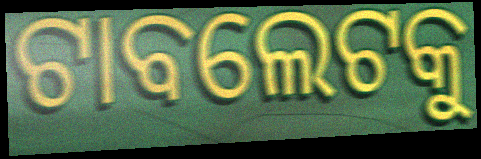
ଟାବଲେଟକୁ